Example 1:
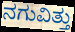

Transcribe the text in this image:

ನಗುವಿತ್ತು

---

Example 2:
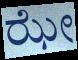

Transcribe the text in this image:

ಝೇ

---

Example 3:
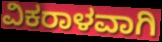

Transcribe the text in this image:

ವಿಕರಾಳವಾಗಿ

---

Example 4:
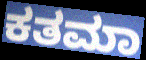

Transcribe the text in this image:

ಕತಮಾ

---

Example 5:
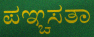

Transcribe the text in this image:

ಪಞ್ಚಸತಾ